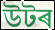
উটৰ